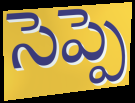
సెప్పె